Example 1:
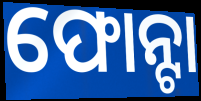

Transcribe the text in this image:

ଫୋନ୍ଟା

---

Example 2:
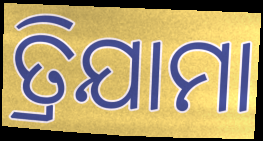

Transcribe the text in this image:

ତ୍ରିଯାମା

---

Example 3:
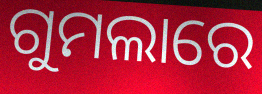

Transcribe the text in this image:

ଗୁମଲାରେ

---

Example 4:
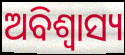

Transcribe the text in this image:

ଅବିଶ୍ଵାସ୍ୟ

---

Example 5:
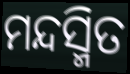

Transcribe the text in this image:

ମନ୍ଦସ୍ମିତ